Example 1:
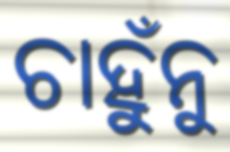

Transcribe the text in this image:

ଚାହୁଁନୁ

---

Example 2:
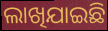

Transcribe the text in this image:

ଲାଖିଯାଇଛି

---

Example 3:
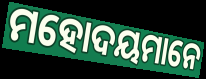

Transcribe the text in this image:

ମହୋଦୟମାନେ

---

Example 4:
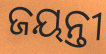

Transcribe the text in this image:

ଜୟନ୍ତୀ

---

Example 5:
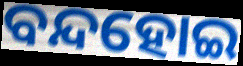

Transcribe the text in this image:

ବନ୍ଦହୋଇ